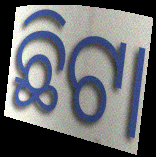
ଛିଟା